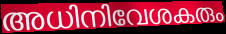
അധിനിവേശകരും